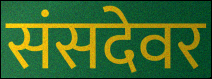
संसदेवर